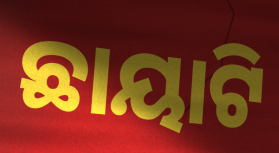
ଛାୟାଟି